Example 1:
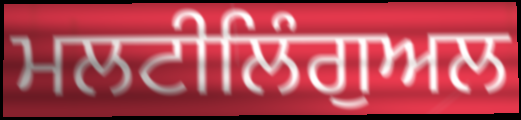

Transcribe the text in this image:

ਮਲਟੀਲਿੰਗੁਅਲ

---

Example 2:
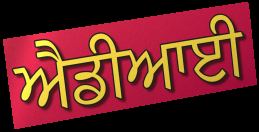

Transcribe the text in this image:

ਐਡੀਆਈ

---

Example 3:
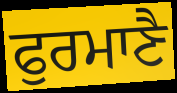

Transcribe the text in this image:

ਫੁਰਮਾਣੈ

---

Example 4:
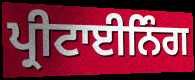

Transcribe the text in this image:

ਪ੍ਰੀਟਾਈਨਿੰਗ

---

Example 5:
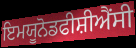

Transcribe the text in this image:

ਇਮਯੂਨੋਡਫੀਸ਼ੀਐਂਸੀ